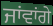
ਜਾਂਵਾਂਗੇ